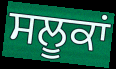
ਸਲੂਕਾਂ